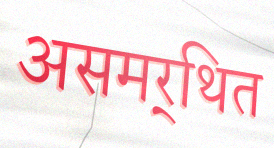
असमर्थित